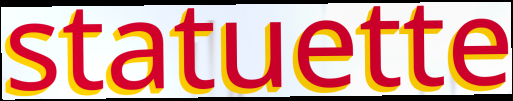
statuette